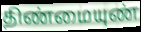
திண்மையுண்